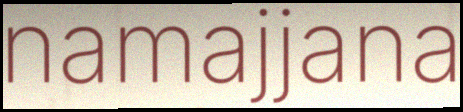
namajjana